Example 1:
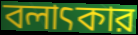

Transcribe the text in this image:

বলাৎকার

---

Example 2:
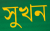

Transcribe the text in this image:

সুখন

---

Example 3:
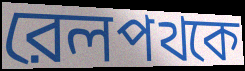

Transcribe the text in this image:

রেলপথকে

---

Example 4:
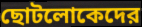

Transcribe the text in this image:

ছোটলোকেদের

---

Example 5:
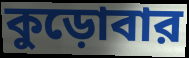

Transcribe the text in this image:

কুড়োবার